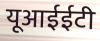
यूआईईटी